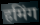
हमिंग